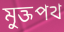
মুক্তপথ